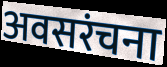
अवसरंचना